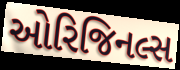
ઓરિજિનલ્સ